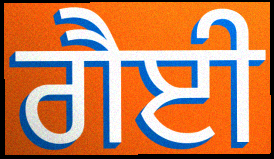
ਗੈਈ